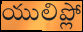
యులిప్లో